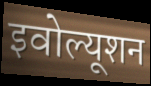
इवोल्यूशन